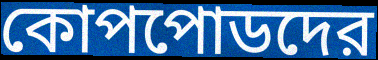
কোপপোডদের